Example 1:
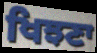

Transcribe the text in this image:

ਖਿਝਣਾ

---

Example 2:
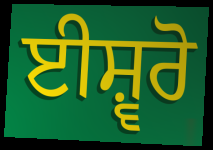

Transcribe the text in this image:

ਈਸ਼੍ਵਰੋ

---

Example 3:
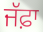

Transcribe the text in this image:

ਜੱਫ਼ਾ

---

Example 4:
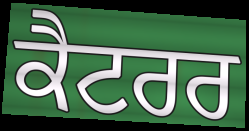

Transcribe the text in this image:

ਕੈਟਰਰ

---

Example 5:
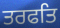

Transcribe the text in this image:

ਤਰਫਤਿ